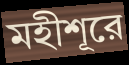
মহীশূরে